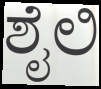
ಶೈಲಿ